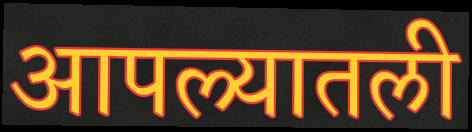
आपल्यातली